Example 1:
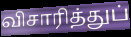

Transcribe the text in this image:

விசாரித்துப்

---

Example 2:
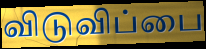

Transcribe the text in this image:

விடுவிப்பை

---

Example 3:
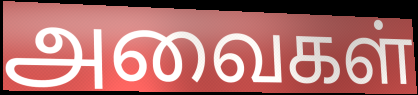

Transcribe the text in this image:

அவைகள்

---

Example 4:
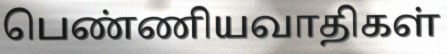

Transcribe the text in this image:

பெண்ணியவாதிகள்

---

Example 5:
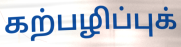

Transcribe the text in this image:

கற்பழிப்புக்